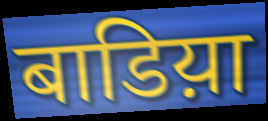
बाडिय़ा